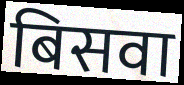
बिसवा